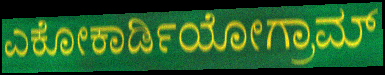
ಎಕೋಕಾರ್ಡಿಯೋಗ್ರಾಮ್